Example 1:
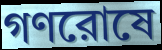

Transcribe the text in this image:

গণরোষে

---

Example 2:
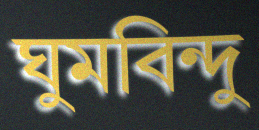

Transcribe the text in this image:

ঘুমবিন্দু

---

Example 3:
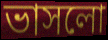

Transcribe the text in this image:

ভাসলো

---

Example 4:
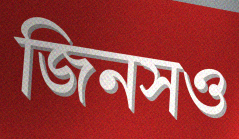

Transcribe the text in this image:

জিনসও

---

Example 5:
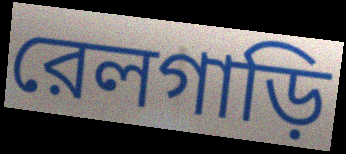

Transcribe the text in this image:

রেলগাড়ি